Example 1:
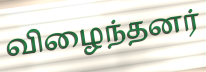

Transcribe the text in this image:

விழைந்தனர்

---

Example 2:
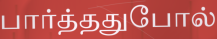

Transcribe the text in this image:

பார்த்ததுபோல்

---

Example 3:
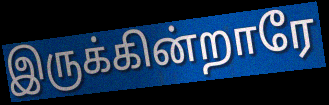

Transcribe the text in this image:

இருக்கின்றாரே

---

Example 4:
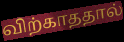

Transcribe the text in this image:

விற்காததால்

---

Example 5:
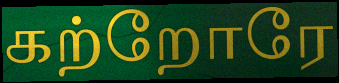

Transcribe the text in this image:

கற்றோரே